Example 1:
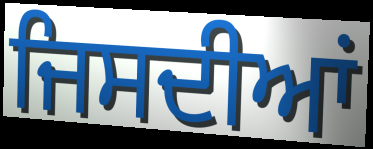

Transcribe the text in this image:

ਜਿਸਦੀਆਂ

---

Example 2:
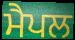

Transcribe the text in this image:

ਮੈਪਲ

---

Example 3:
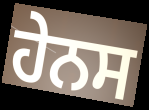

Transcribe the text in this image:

ਹੇਨਸ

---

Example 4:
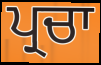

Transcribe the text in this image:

ਪ੍ਰਚਾ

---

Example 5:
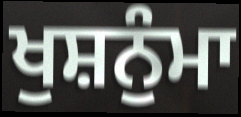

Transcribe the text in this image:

ਖੁਸ਼ਨੁੰਮਾ